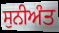
ਸੁਨੀਅੰਤ